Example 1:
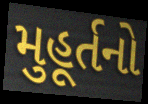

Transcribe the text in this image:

મુહૂર્તનો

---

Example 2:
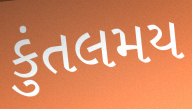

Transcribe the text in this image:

કુંતલમય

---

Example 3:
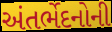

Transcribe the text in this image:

અંતર્ભેદનોની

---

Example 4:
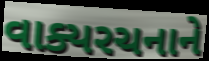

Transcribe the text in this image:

વાક્યરચનાને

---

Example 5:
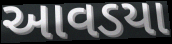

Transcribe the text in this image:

આવડયા